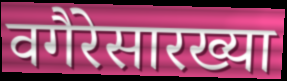
वगैरेसारख्या